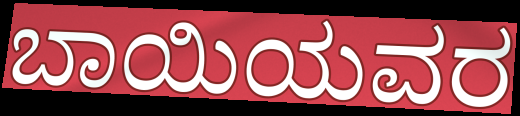
ಬಾಯಿಯವರ